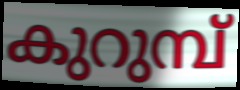
കുറുമ്പ്